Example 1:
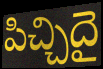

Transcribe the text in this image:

పిచ్చిదై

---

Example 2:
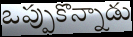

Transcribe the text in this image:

ఒప్పుకొన్నాడు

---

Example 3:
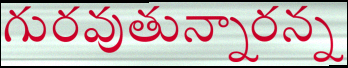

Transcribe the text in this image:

గురవుతున్నారన్న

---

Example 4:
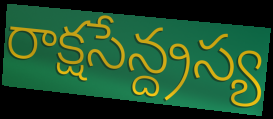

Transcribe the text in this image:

రాక్షసేన్ద్రస్య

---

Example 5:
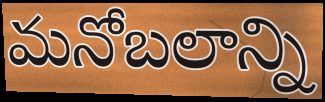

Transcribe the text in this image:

మనోబలాన్ని